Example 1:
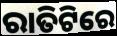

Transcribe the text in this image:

ରାତିଟିରେ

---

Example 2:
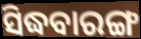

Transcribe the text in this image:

ସିଦ୍ଧବାରଙ୍ଗ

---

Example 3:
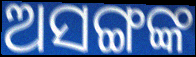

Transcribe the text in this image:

ଅସଙ୍ଗଙ୍କ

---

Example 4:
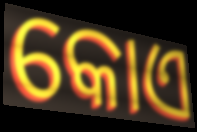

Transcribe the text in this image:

କୋଏ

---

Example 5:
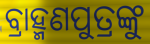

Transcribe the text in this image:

ବ୍ରାହ୍ମଣପୁତ୍ରଙ୍କୁ